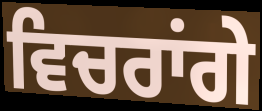
ਵਿਚਰਾਂਗੇ